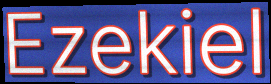
Ezekiel